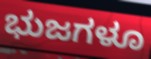
ಭುಜಗಳೂ